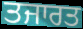
ਤਜਾਰਤ